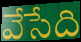
వేసేది